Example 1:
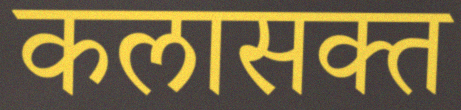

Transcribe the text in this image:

कलासक्त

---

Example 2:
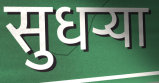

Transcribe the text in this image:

सुधर्‍या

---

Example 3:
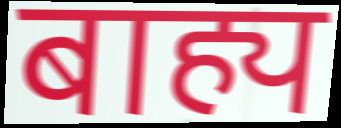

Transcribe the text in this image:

बाह्य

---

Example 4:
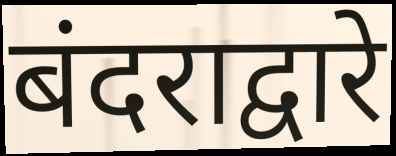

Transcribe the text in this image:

बंदराद्वारे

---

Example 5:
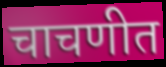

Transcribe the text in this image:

चाचणीत